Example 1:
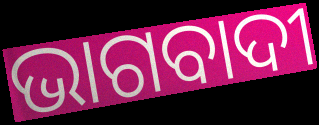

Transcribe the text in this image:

ଭାଗବାଦୀ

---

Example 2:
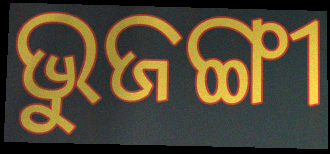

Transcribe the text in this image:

ଭୁଜଙ୍ଗୀ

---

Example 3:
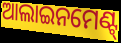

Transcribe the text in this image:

ଆଲାଇନମେଣ୍ଟ୍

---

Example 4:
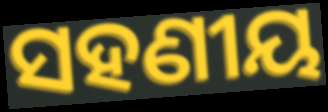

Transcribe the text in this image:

ସହଣୀୟ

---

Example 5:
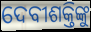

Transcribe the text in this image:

ଦେବୀଶକ୍ତିଙ୍କୁ